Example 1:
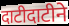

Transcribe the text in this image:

दाटीदाटीने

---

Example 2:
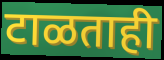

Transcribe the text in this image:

टाळताही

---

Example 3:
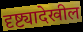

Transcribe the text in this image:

दृष्ट्यादेखील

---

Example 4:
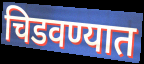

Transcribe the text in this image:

चिडवण्यात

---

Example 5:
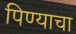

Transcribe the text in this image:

पिण्याचा